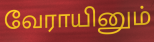
வேராயினும்